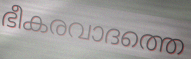
ഭീകരവാദത്തെ